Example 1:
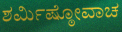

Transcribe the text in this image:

ಶರ್ಮಿಷ್ಠೋವಾಚ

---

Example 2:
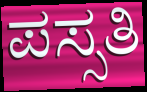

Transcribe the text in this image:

ಪಸ್ಸತಿ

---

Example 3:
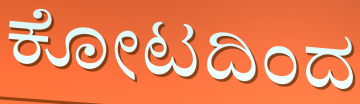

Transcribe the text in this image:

ಕೋಟದಿಂದ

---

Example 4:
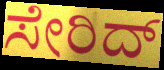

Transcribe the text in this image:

ಸೇರಿದ್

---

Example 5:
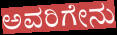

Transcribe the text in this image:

ಅವರಿಗೇನು